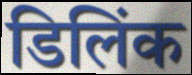
डिलिंक